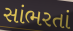
સાંભરતાં